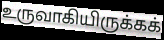
உருவாகியிருக்கக்